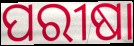
ପରୀଷା